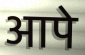
आपे